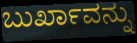
ಬುರ್ಖಾವನ್ನು